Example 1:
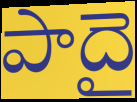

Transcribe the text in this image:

పాదై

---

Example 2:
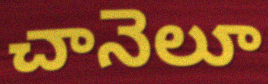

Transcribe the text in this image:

చానెలూ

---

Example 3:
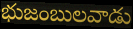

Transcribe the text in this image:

భుజంబులవాడు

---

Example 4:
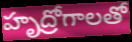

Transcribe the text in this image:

హృద్రోగాలతో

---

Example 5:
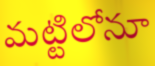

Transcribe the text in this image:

మట్టిలోనూ